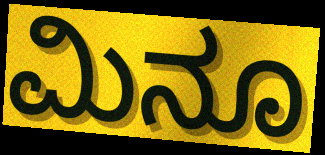
ಮಿನೂ